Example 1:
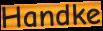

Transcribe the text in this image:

Handke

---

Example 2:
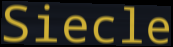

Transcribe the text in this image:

Siecle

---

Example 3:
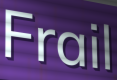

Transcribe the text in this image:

Frail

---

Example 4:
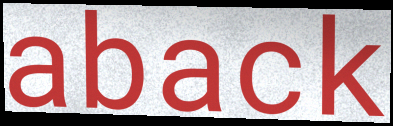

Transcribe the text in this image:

aback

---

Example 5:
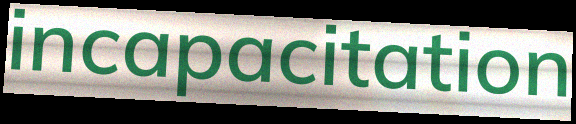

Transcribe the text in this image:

incapacitation